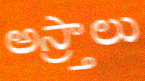
అస్ర్తాలు